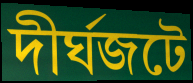
দীর্ঘজটে